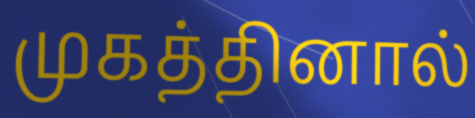
முகத்தினால்